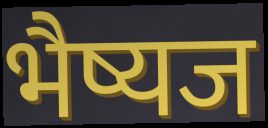
भैष्यज